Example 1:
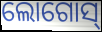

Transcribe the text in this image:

ଲୋଗୋସ୍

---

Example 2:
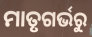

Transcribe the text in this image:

ମାତୃଗର୍ଭରୁ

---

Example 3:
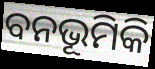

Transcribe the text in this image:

ବନଭୂମିକି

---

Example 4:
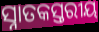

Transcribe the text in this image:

ସ୍ନାତକସ୍ତରୀୟ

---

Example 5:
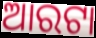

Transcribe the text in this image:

ଆରଟା